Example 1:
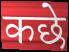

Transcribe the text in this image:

कछे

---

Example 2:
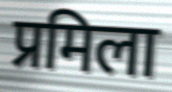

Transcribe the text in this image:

प्रमिला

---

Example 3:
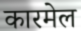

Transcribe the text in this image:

कारमेल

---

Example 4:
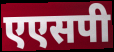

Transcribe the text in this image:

एएसपी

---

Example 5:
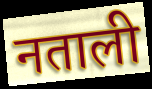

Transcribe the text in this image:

नताली